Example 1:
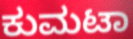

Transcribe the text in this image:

ಕುಮಟಾ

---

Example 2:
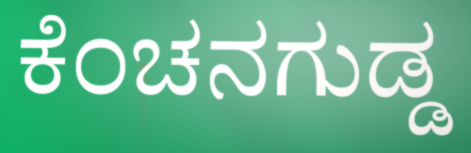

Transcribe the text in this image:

ಕೆಂಚನಗುಡ್ಡ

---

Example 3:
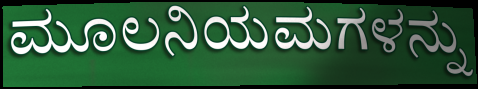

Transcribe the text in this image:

ಮೂಲನಿಯಮಗಳನ್ನು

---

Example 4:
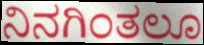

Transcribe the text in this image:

ನಿನಗಿಂತಲೂ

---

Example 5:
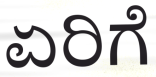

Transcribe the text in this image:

ಏರಿಗೆ